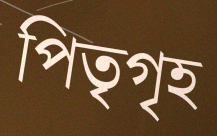
পিতৃগৃহ